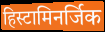
हिस्टामिनर्जिक